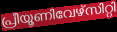
പ്രീയൂണിവേഴ്സിറ്റി